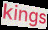
kings